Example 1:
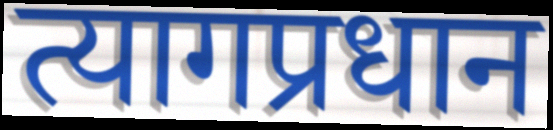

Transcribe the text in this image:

त्यागप्रधान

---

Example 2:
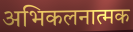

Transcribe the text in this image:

अभिकलनात्मक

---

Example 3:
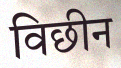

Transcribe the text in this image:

विछीन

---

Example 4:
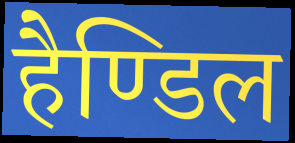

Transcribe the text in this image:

हैण्डिल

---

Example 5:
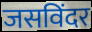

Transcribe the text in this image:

जसविंदर